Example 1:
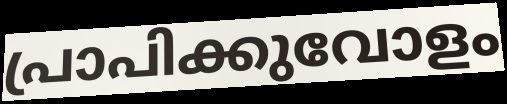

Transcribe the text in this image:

പ്രാപിക്കുവോളം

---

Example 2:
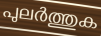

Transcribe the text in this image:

പുലർത്തുക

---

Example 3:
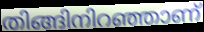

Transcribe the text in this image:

തിങ്ങിനിറഞ്ഞാണ്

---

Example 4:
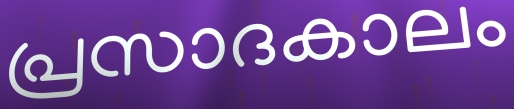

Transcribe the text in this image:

പ്രസാദകാലം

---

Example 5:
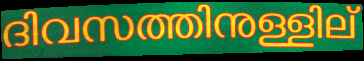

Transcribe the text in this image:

ദിവസത്തിനുള്ളില്